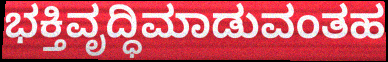
ಭಕ್ತಿವೃದ್ಧಿಮಾಡುವಂತಹ